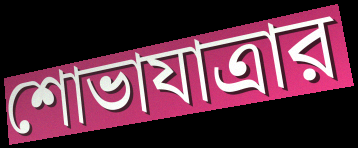
শোভাযাত্রার